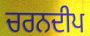
ਚਰਨਦੀਪ